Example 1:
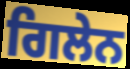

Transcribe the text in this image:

ਗਿਲੇਨ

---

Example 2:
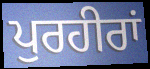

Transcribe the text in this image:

ਪੁਰਹੀਰਾਂ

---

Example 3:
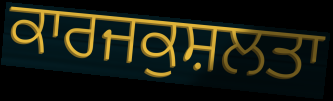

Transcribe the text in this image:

ਕਾਰਜਕੁਸ਼ਲਤਾ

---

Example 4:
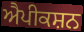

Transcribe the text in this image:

ਐਪੀਕਸ਼ਨ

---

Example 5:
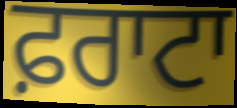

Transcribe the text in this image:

ਫ਼ਰਾਟਾ